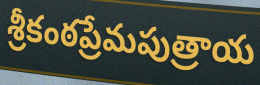
శ్రీకంఠప్రేమపుత్రాయ